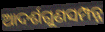
ଆଦର୍ଶଗୁଣସମ୍ପନ୍ନ